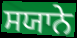
ਸਯਾਨੇ